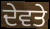
ਦੇਵਤੇ